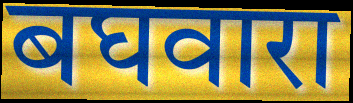
बघवारा